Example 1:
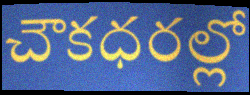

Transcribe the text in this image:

చౌకధరల్లో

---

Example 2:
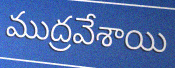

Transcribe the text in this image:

ముద్రవేశాయి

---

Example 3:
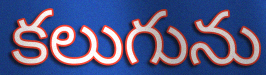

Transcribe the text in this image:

కలుగును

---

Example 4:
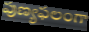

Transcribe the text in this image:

పుణ్యఫలంగా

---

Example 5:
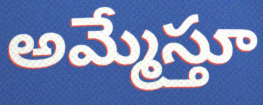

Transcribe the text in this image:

అమ్మేస్తూ